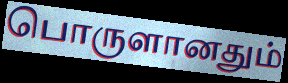
பொருளானதும்